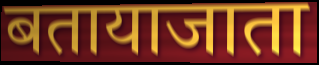
बतायाजाता